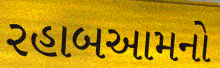
રહાબઆમનો